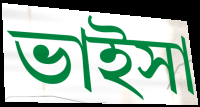
ভাইসা